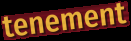
tenement